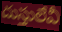
దుస్తులేవీ